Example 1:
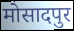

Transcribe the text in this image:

मोसादपुर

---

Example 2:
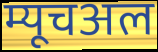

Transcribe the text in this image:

म्यूचअल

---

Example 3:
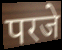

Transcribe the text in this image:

परजे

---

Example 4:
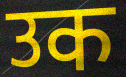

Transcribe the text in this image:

उक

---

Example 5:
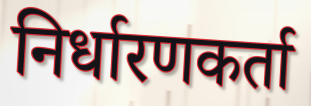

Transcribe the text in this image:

निर्धारणकर्ता